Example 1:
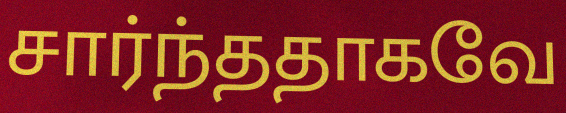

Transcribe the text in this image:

சார்ந்ததாகவே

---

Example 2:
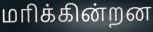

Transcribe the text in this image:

மரிக்கின்றன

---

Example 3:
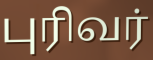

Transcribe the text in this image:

புரிவர்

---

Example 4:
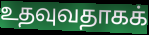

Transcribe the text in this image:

உதவுவதாகக்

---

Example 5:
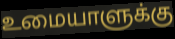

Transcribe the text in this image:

உமையாளுக்கு